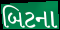
બિટના